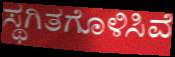
ಸ್ಥಗಿತಗೊಳಿಸಿವೆ